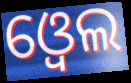
ଓ୍ବେଲ